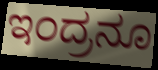
ಇಂದ್ರನೂ